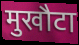
मुखौटा